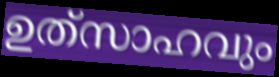
ഉത്‌സാഹവും